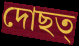
দোছত্